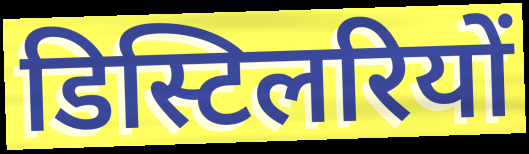
डिस्टिलरियों